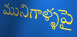
మునిగాళ్ళపై